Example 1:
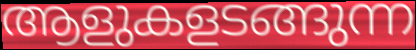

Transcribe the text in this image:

ആളുകളടങ്ങുന്ന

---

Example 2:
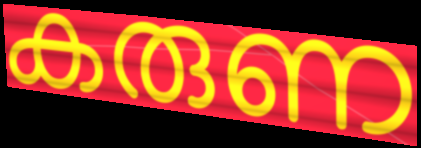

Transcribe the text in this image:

കരുണ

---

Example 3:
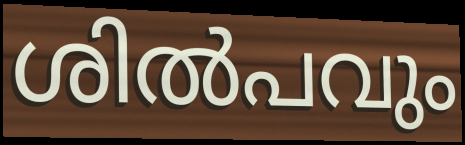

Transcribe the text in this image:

ശിൽപവും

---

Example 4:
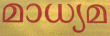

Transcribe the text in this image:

മാധ്യമ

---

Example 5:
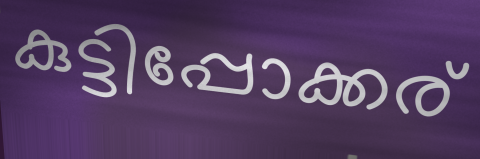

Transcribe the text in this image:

കുട്ടിപ്പോക്കര്